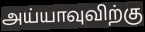
அய்யாவுவிற்கு